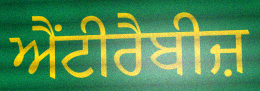
ਐਂਟੀਰੈਬੀਜ਼